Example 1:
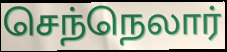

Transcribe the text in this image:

செந்நெலார்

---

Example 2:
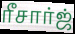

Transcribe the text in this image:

ரீசார்ஜ்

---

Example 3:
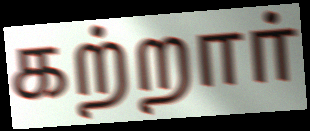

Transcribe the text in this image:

கற்றார்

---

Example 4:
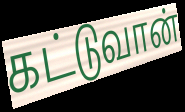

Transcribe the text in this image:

கட்டுவான்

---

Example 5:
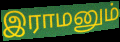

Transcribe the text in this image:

இராமனும்